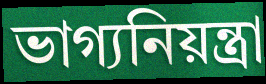
ভাগ্যনিয়ন্ত্রা